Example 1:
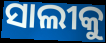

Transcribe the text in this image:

ସାଲୀକୁ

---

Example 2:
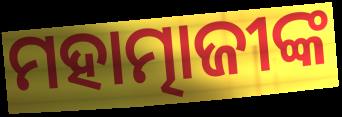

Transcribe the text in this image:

ମହାତ୍ମାଜୀଙ୍କ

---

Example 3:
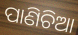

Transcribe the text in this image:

ପାଣିଚିଆ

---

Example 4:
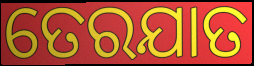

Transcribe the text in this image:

ତେରଯାତ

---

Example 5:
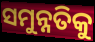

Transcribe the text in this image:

ସମୁନ୍ନତିକୁ